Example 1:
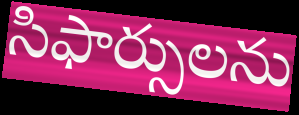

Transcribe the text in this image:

సిఫార్సులను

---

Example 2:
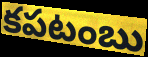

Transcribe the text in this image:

కపటంబు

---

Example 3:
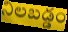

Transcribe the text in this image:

నిలబడ్డం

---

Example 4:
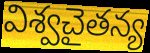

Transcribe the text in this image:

విశ్వచైతన్య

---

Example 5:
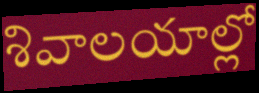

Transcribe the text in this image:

శివాలయాల్లో